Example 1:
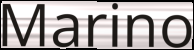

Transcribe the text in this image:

Marino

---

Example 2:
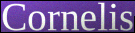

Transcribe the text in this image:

Cornelis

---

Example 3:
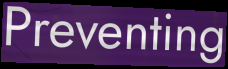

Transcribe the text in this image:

Preventing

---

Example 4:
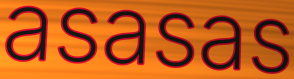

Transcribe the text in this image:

asasas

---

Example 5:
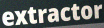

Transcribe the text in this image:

extractor